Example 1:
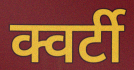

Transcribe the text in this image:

क्वर्टी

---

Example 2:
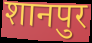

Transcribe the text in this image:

शानपुर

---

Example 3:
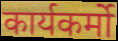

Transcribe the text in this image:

कार्यकर्मो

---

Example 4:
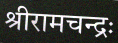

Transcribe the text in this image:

श्रीरामचन्द्रः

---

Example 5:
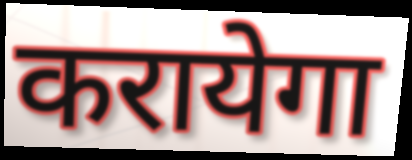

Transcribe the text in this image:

करायेगा